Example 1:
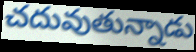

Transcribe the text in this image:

చదువుతున్నాడు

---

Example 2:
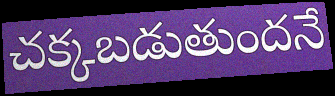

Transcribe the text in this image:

చక్కబడుతుందనే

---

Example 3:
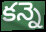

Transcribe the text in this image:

కన్నె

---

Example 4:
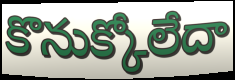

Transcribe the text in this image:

కొనుక్కోలేదా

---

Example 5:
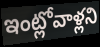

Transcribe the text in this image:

ఇంట్లోవాళ్లని